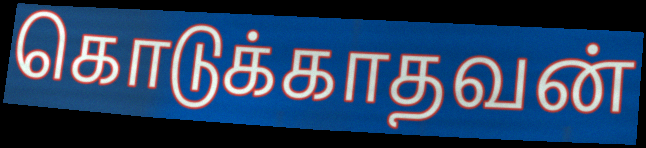
கொடுக்காதவன்